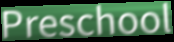
Preschool